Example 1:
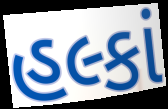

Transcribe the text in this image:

હલ્કાં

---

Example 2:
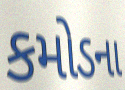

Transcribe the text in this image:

કમોડના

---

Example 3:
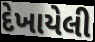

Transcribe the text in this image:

દેખાયેલી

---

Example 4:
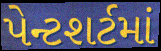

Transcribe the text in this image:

પેન્ટશર્ટમાં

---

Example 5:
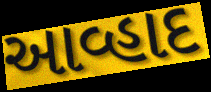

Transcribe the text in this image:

આવ્હાદ